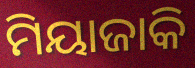
ମିୟାଜାକି